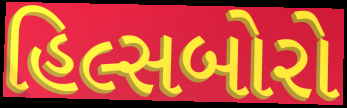
હિલ્સબોરો